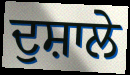
ਦੁਸ਼ਾਲੇ